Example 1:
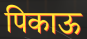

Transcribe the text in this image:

पिकाऊ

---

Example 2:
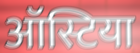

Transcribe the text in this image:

ऑस्टिया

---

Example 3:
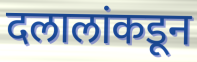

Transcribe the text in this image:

दलालांकडून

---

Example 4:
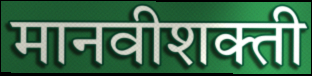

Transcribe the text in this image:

मानवीशक्ती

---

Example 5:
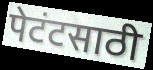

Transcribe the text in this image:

पेटंटसाठी